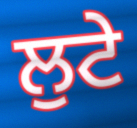
ਲੁਟੇ